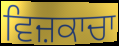
ਵਿਜ਼ਕਾਚਾ